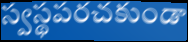
స్వస్థపరచకుండా